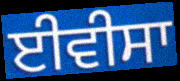
ਈਵੀਸਾ